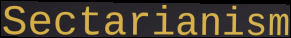
Sectarianism